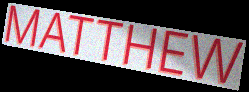
MATTHEW